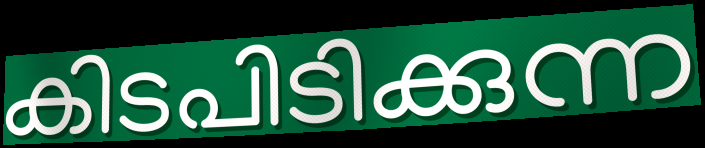
കിടപിടിക്കുന്ന